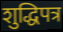
शुद्धिपत्र